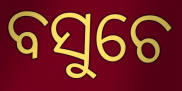
ବସୁଚେ